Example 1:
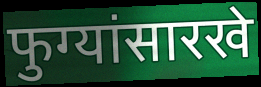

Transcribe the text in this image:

फुग्यांसारखे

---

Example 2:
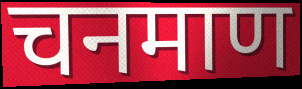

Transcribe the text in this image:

चनमाण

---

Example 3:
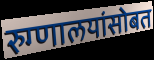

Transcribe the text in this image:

रुग्णालयांसोबत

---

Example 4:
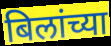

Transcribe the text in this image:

बिलांच्या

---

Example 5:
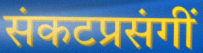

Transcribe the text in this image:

संकटप्रसंगीं